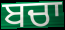
ਬਚਾ